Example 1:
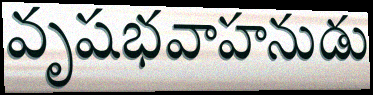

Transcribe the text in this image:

వృషభవాహనుడు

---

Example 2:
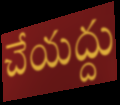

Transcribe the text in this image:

చేయద్దు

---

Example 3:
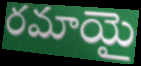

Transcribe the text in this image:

రమాయై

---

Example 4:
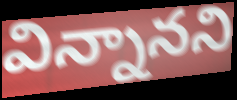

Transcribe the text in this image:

విన్నానని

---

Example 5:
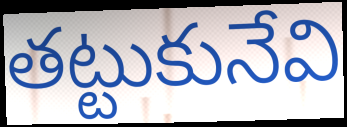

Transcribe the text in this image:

తట్టుకునేవి